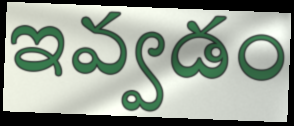
ఇవ్వడం